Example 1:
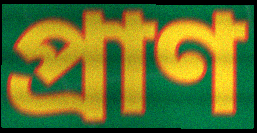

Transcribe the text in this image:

প্রাণ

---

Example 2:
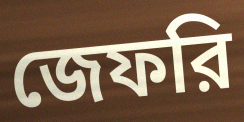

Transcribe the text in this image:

জেফরি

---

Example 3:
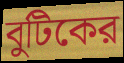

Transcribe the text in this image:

বুটিকের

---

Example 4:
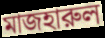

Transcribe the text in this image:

মাজহারুল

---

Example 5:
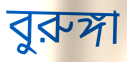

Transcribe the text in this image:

বুরুঙ্গা